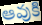
ఆవుకి